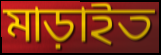
মাড়াইত